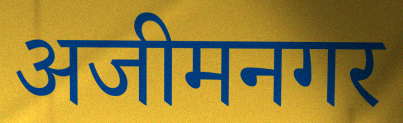
अजीमनगर